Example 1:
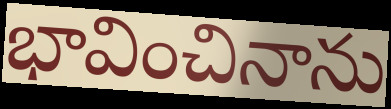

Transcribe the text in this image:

భావించినాను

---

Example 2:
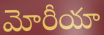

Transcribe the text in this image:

మోరీయా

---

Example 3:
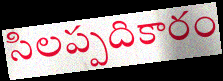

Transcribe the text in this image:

సిలప్పదికారం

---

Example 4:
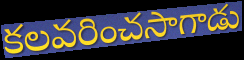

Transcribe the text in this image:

కలవరించసాగాడు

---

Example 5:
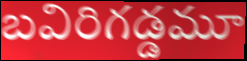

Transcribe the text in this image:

బవిరిగడ్డమూ